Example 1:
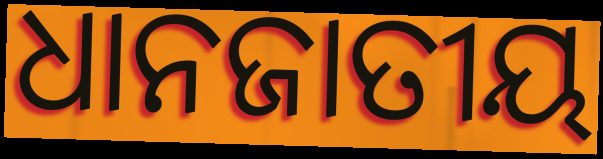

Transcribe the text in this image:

ଧାନଜାତୀୟ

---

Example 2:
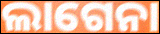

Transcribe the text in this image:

ଲାଗେନା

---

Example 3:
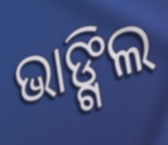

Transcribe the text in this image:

ଭାଙ୍ଗିଲ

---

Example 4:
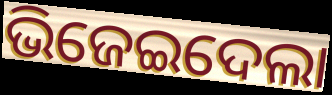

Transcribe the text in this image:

ଭିଜେଇଦେଲା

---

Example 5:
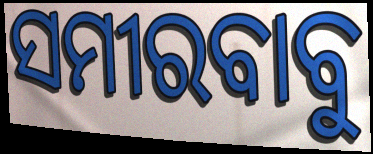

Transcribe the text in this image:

ସମୀରବାବୁ